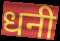
धनी